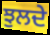
ਝੁਲਦੇ